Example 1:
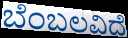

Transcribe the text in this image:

ಬೆಂಬಲವಿದೆ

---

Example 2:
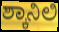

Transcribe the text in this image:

ಶ್ಕಾನಿಲಿ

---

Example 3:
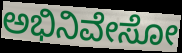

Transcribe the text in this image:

ಅಭಿನಿವೇಸೋ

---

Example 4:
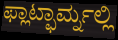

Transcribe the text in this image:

ಫ್ಲಾಟ್ಫಾರ್ಮ್ನಲ್ಲಿ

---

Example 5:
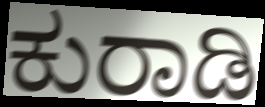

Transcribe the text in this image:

ಕುರಾಡಿ